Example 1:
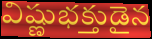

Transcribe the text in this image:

విష్ణుభక్తుడైన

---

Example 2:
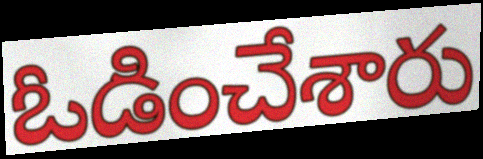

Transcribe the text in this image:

ఓడించేశారు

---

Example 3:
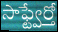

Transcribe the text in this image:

సాఫ్ట్వేర్తో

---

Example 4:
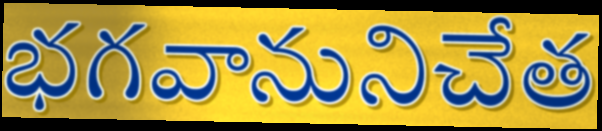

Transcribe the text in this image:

భగవానునిచేత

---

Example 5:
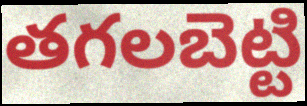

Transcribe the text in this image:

తగలబెట్టి